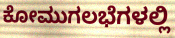
ಕೋಮುಗಲಭೆಗಳಲ್ಲಿ